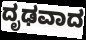
ದೃಢವಾದ